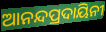
ଆନନ୍ଦପ୍ରଦାୟିନୀ